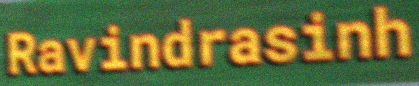
Ravindrasinh